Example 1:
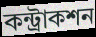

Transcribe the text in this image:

কন্ট্রাকশন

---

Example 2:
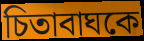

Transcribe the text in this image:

চিতাবাঘকে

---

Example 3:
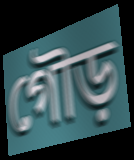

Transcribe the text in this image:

গৌড়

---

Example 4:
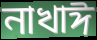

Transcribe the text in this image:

নাখাঈ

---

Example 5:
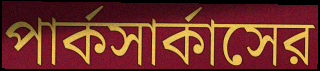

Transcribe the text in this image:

পার্কসার্কাসের